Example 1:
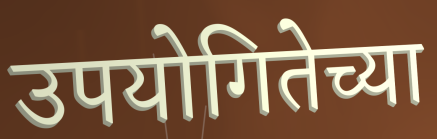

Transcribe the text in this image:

उपयोगितेच्या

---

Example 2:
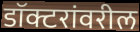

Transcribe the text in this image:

डॉक्टरांवरील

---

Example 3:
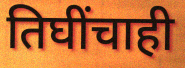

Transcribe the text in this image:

तिघींचाही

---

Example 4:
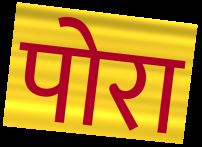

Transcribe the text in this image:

पोरा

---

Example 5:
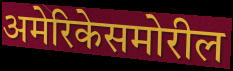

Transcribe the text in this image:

अमेरिकेसमोरील